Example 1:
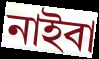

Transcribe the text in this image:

নাইবা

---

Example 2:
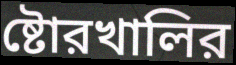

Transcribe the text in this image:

ষ্টোরখালির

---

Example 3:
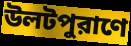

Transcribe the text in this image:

উলটপুরাণে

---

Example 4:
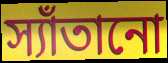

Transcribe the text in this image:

স্যাঁতানো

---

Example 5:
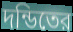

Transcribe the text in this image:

দন্ডিতের